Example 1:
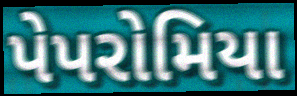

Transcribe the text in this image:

પેપરોમિયા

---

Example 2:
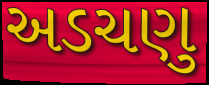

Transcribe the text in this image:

અડચણુ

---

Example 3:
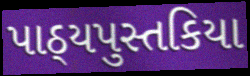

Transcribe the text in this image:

પાઠ્યપુસ્તકિયા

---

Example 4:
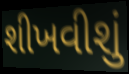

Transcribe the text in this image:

શીખવીશું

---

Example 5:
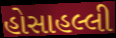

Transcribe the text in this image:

હોસાહલ્લી